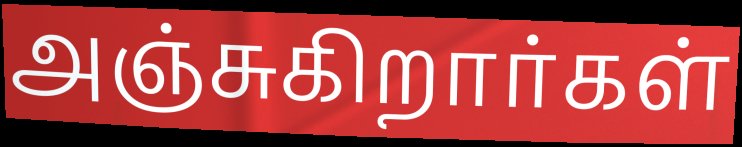
அஞ்சுகிறார்கள்